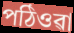
পঠিওৱা